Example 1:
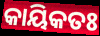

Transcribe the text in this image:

କାୟିକତଃ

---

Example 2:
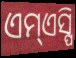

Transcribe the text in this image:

ଏମ୍ଏସ୍ପି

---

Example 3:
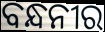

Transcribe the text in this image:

ବନ୍ଧନୀର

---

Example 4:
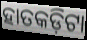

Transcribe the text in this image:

ହାତକଡ଼ିଟା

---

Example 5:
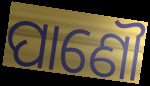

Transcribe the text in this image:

ପାଣୌ